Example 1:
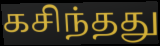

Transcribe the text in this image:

கசிந்தது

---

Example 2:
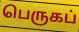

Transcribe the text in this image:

பெருகப்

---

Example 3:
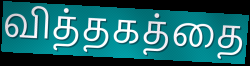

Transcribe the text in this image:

வித்தகத்தை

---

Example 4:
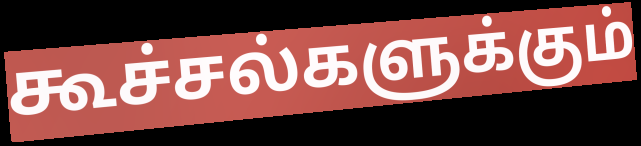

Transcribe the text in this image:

கூச்சல்களுக்கும்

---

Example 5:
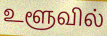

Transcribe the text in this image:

உளூவில்